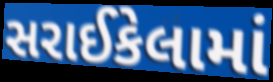
સરાઈકેલામાં